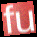
fu